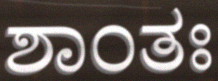
ಶಾಂತಃ